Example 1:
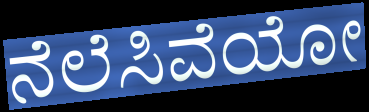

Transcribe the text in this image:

ನೆಲೆಸಿವೆಯೋ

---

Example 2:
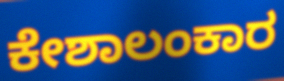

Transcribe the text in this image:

ಕೇಶಾಲಂಕಾರ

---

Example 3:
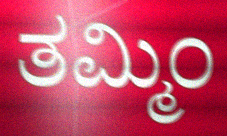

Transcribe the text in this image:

ತಮ್ಮಿಂ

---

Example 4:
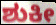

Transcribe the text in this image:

ಶುಕೀ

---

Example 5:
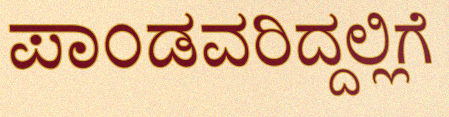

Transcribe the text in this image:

ಪಾಂಡವರಿದ್ದಲ್ಲಿಗೆ